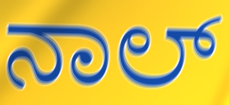
ನಾಲ್